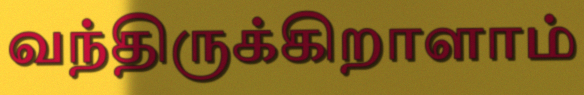
வந்திருக்கிறாளாம்